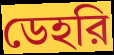
ডেহরি